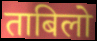
ताबिलो